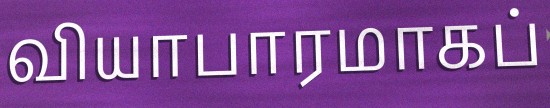
வியாபாரமாகப்